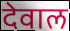
देवाल